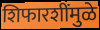
शिफारशींमुळे